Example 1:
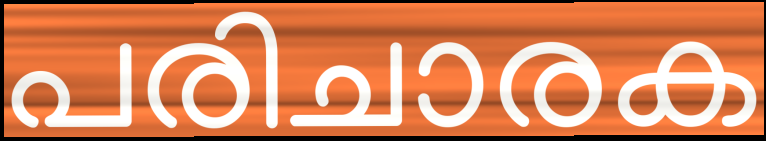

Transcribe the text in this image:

പരിചാരക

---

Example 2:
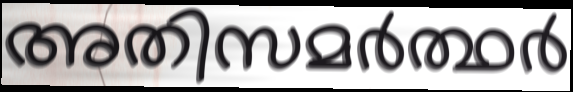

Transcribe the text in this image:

അതിസമർത്ഥർ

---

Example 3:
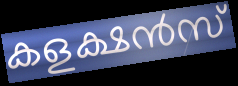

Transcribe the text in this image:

കളക്ഷൻസ്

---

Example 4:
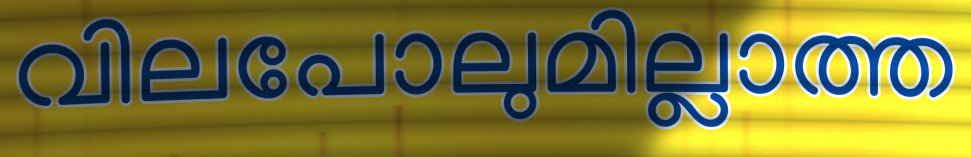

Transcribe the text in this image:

വിലപോലുമില്ലാത്ത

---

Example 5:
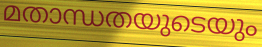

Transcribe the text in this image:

മതാന്ധതയുടെയും